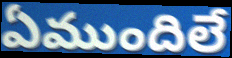
ఏముందిలే